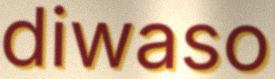
diwaso